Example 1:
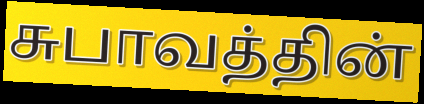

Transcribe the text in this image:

சுபாவத்தின்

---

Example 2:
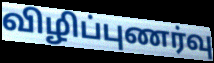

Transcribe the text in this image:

விழிப்புணர்வு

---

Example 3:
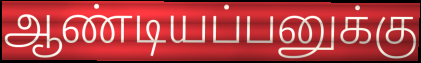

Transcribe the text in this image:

ஆண்டியப்பனுக்கு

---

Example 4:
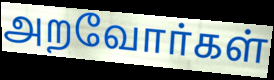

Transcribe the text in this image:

அறவோர்கள்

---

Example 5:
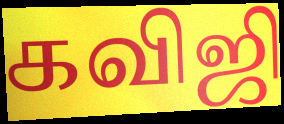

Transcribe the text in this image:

கவிஜி